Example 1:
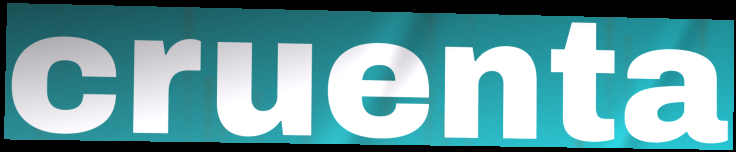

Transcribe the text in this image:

cruenta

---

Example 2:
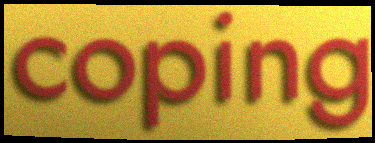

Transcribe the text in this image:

coping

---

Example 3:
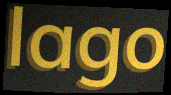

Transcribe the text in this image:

Iago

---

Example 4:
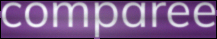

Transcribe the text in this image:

comparee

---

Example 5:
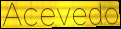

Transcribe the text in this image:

Acevedo